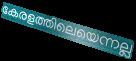
കേരളത്തിലെയെന്നല്ല